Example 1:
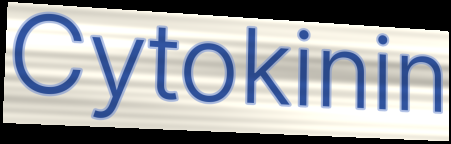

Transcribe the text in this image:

Cytokinin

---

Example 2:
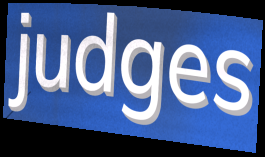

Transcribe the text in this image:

judges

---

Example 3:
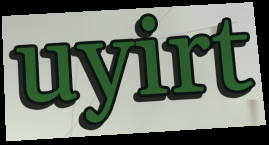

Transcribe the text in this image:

uyirt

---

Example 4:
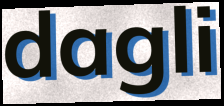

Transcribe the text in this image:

dagli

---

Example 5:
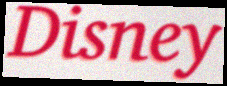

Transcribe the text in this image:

Disney